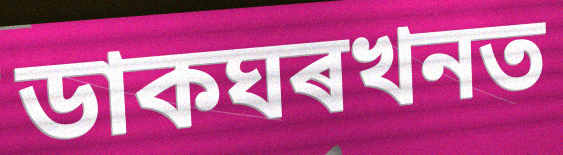
ডাকঘৰখনত